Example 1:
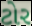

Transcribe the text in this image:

ટોર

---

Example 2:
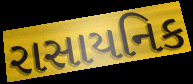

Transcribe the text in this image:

રાસાયનિક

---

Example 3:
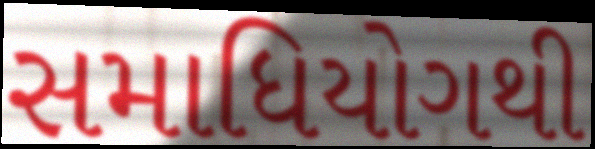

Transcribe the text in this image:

સમાધિયોગથી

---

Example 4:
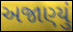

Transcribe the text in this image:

અજાણ્યું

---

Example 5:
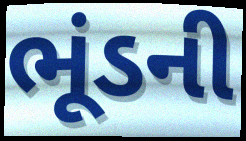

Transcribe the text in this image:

ભૂંડની